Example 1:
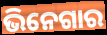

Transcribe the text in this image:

ଭିନେଗାର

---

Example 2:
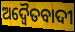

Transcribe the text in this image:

ଅଦ୍ୱୈତବାଦୀ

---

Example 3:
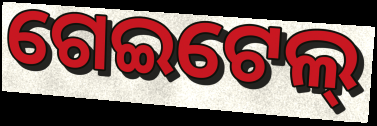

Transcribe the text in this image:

ଗେଇଟେଲ୍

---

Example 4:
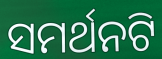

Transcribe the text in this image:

ସମର୍ଥନଟି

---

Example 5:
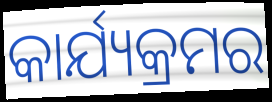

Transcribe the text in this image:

କାର୍ଯ୍ୟକ୍ରମର